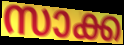
സാക്ക